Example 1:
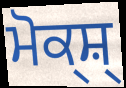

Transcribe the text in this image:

ਮੋਕ੍ਸ਼੍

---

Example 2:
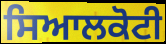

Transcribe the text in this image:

ਸਿਆਲਕੋਟੀ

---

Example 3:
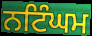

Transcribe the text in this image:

ਨਟਿੰਘਮ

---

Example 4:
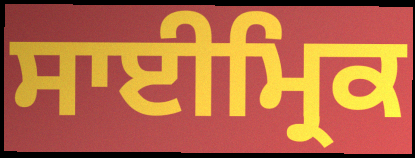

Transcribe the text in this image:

ਸਾਈਮ੍ਰਿਕ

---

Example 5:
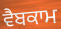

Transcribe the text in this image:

ਵੈਬਕਾਮ